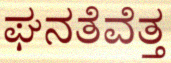
ಘನತೆವೆತ್ತ